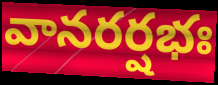
వానరర్షభః